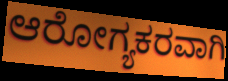
ಆರೋಗ್ಯಕರವಾಗಿ